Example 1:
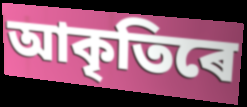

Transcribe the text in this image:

আকৃতিৰে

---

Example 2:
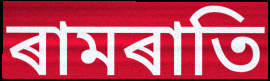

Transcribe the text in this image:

ৰামৰাতি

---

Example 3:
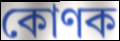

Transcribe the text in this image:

কোণক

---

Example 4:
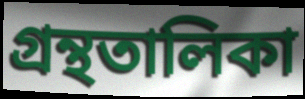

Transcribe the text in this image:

গ্ৰন্থতালিকা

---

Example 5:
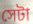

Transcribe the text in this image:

সেটা